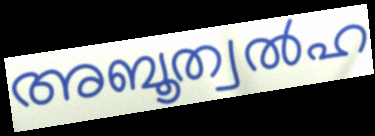
അബൂത്വൽഹ